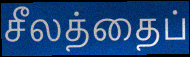
சீலத்தைப்